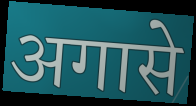
अगासे